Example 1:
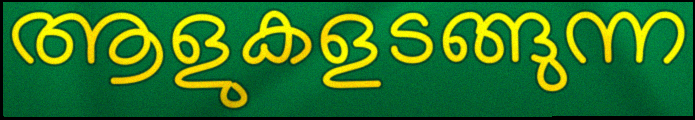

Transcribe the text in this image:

ആളുകളടങ്ങുന്ന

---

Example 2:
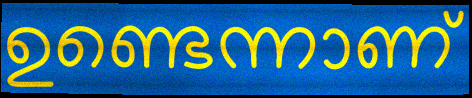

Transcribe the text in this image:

ഉണ്ടെന്നാണ്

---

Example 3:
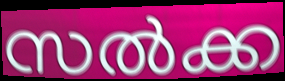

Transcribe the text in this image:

സൽക്ക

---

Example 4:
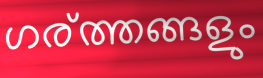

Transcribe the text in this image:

ഗര്ത്തങ്ങളും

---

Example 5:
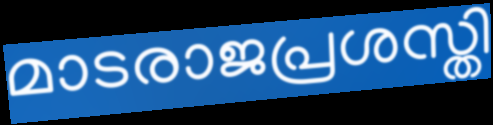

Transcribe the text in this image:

മാടരാജപ്രശസ്തി